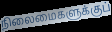
நிலைமைகளுக்குப்